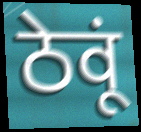
ठेवूं